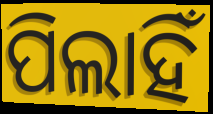
ପିଲାହିଁ